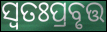
ସ୍ବତଃପ୍ରବୃତ୍ତ